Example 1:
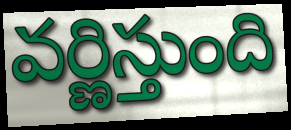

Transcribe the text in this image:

వర్ణిస్తుంది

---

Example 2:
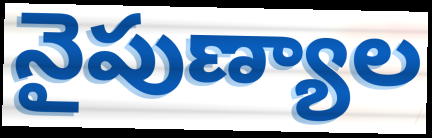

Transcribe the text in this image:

నైపుణ్యాల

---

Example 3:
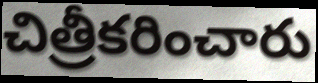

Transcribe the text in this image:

చిత్రీకరించారు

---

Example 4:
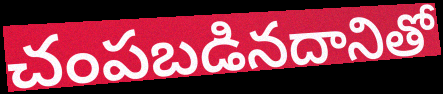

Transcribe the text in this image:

చంపబడినదానితో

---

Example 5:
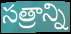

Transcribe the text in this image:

సత్రాన్ని